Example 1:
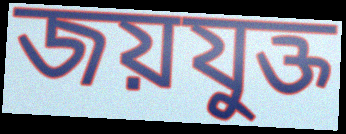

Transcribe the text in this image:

জয়যুক্ত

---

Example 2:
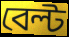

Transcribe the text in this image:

বেল্ট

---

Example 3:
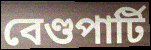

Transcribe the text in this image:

বেণ্ডপাৰ্টি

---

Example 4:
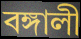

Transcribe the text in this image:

বঙ্গালী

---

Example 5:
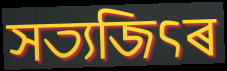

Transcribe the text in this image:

সত্যজিৎৰ